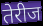
तेरीज